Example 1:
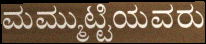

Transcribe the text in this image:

ಮಮ್ಮುಟ್ಟಿಯವರು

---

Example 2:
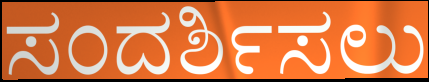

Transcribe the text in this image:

ಸಂದರ್ಶಿಸಲು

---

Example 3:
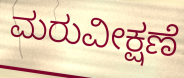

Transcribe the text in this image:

ಮರುವೀಕ್ಷಣೆ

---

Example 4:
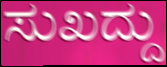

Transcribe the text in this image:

ಸುಖದ್ದು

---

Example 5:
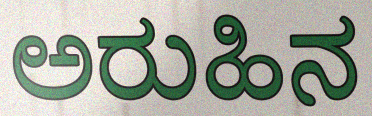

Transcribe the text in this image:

ಅರುಹಿನ